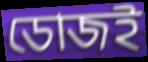
ডোজই